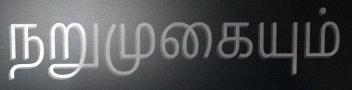
நறுமுகையும்